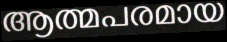
ആത്മപരമായ